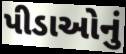
પીડાઓનું